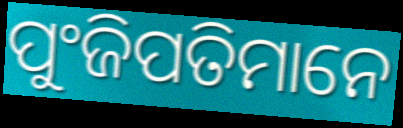
ପୁଂଜିପତିମାନେ